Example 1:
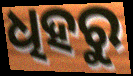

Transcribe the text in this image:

ଧିହରୁ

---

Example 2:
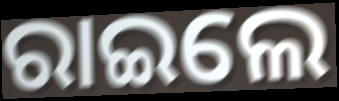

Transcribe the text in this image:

ରାଇଲେ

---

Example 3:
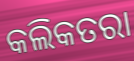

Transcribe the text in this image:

କଲିକତରା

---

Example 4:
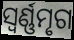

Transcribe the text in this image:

ସ୍ଵର୍ଣ୍ଣମୃଗ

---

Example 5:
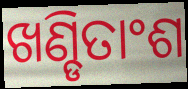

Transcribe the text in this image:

ଖଣ୍ଡିତାଂଶ